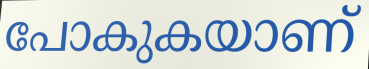
പോകുകയാണ്